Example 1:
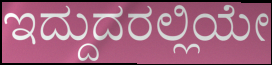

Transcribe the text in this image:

ಇದ್ದುದರಲ್ಲಿಯೇ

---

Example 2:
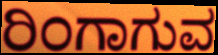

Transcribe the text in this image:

ರಿಂಗಾಗುವ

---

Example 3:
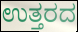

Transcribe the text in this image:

ಉತ್ತರದ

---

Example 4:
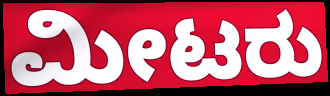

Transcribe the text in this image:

ಮೀಟರು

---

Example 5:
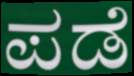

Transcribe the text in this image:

ಪಡೆ